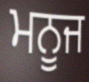
ਮਨੂਜ